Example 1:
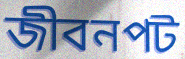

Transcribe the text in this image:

জীবনপট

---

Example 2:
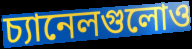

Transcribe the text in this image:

চ্যানেলগুলোও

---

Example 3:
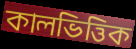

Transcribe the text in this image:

কালভিত্তিক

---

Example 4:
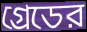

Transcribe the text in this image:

গ্রেডের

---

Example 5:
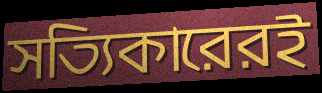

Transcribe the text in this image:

সত্যিকারেরই